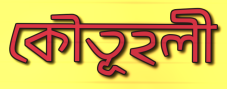
কৌতূহলী